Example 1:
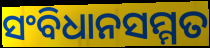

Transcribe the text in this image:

ସଂବିଧାନସମ୍ମତ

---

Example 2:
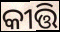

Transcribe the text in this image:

କୀତ୍ତି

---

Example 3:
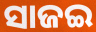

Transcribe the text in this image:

ସାଜଇ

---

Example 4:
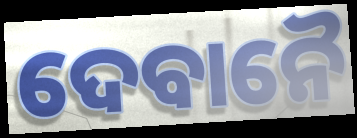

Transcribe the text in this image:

ଦେବାନୈ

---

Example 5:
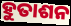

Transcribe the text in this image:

ହୁତାଶନ